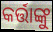
କର୍ତ୍ତାଙ୍କୁ